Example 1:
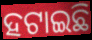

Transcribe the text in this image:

ହଟାଇଛି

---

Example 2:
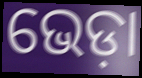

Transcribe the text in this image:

ଭେଡ଼ା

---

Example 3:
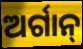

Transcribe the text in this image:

ଅର୍ଗାନ୍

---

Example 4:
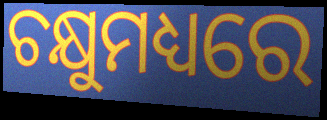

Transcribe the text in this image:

ଚକ୍ଷୁମଧ୍ଯରେ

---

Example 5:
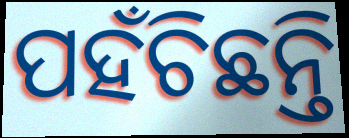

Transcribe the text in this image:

ପହଁଚିଛନ୍ତି